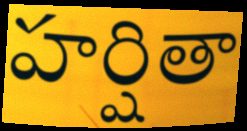
హర్షితా